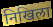
निखिला